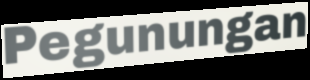
Pegunungan